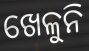
ଖେଳୁନି